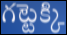
గట్టెక్కి